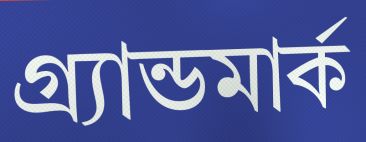
গ্র্যান্ডমার্ক